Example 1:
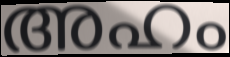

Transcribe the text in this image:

അഹം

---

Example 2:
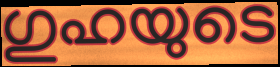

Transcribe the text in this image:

ഗുഹയുടെ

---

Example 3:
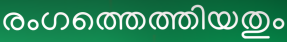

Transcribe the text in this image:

രംഗത്തെത്തിയതും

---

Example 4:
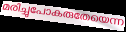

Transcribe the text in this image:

മരിച്ചുപോകരുതേയെന്ന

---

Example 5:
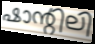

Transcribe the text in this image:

ഷാന്റിലി